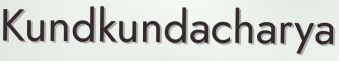
Kundkundacharya